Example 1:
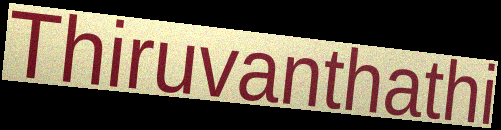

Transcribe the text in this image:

Thiruvanthathi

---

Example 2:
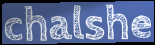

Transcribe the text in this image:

chalshe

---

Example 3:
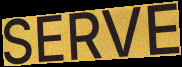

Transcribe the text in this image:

SERVE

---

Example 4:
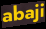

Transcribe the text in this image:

abaji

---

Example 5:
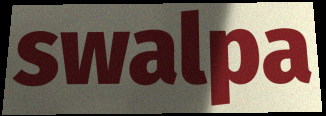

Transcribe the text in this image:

swalpa